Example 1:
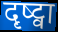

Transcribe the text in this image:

दृष्ट्वा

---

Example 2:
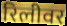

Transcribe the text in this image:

रिलीवर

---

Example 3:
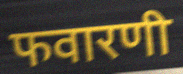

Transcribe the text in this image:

फवारणी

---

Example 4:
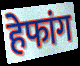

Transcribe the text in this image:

हेफांग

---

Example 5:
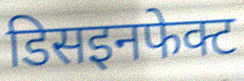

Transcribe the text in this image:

डिसइनफेक्ट